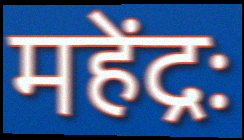
महेंद्रः